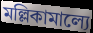
মল্লিকামাল্যে